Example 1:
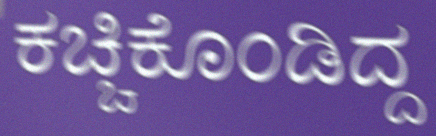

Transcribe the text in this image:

ಕಚ್ಚಿಕೊಂಡಿದ್ದ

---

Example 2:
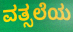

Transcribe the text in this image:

ವತ್ಸಲೆಯ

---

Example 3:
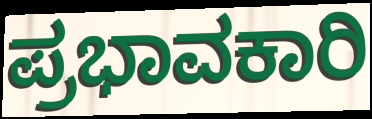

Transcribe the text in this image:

ಪ್ರಭಾವಕಾರಿ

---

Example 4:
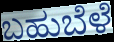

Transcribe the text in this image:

ಬಹುಬೆಳೆ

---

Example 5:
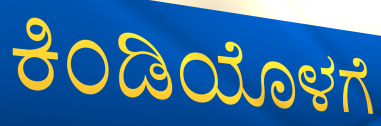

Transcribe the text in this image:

ಕಿಂಡಿಯೊಳಗೆ